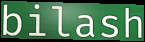
bilash